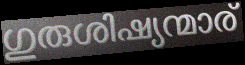
ഗുരുശിഷ്യന്മാര്